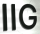
IIG